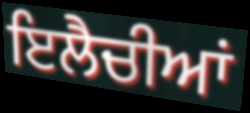
ਇਲੈਚੀਆਂ